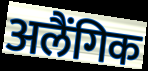
अलैंगिक